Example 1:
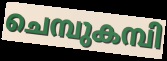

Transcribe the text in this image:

ചെമ്പുകമ്പി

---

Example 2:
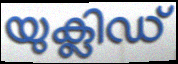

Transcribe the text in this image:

യുക്ലിഡ്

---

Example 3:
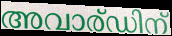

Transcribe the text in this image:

അവാര്ഡിന്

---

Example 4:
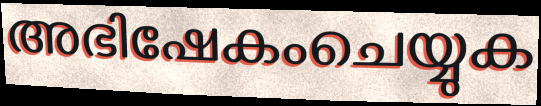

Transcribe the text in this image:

അഭിഷേകംചെയ്യുക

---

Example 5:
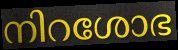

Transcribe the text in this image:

നിറശോഭ